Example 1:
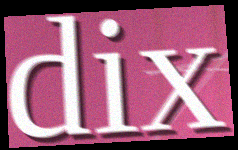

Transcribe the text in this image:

dix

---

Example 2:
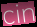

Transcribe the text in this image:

cin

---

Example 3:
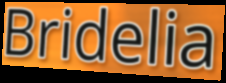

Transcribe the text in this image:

Bridelia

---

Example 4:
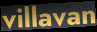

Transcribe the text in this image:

villavan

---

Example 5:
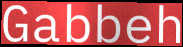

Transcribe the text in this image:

Gabbeh